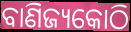
ବାଣିଜ୍ୟକୋଠି